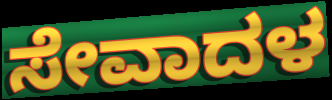
ಸೇವಾದಳ